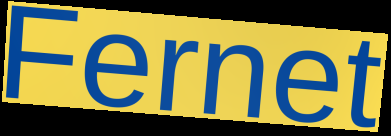
Fernet